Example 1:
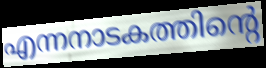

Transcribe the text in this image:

എന്നനാടകത്തിന്റെ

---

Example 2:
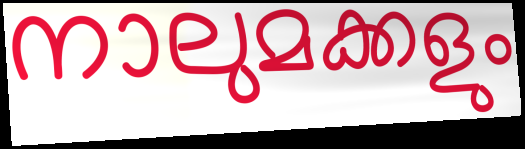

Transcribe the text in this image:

നാലുമക്കളും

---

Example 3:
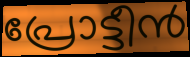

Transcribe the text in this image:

പ്രോട്ടീൻ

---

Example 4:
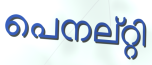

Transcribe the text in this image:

പെനല്റ്റി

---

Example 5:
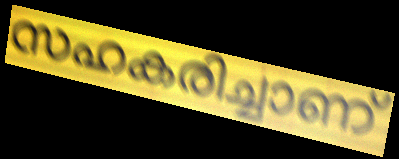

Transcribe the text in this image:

സഹകരിച്ചാണ്